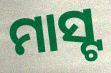
ମାସ୍ଟ